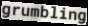
grumbling